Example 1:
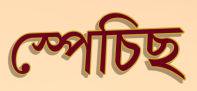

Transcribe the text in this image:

স্পেচিছ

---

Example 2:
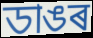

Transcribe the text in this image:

ডাঙৰ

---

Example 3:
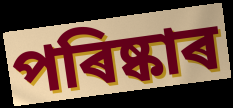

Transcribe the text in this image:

পৰিষ্কাৰ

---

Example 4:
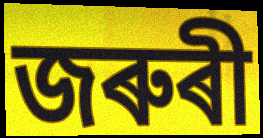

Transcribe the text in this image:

জৰুৰী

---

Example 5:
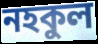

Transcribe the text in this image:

নহকুল